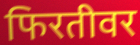
फिरतीवर